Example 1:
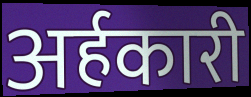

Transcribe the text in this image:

अर्हकारी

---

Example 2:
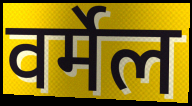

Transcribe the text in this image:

वर्मेल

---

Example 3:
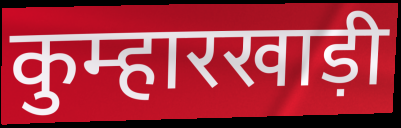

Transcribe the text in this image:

कुम्हारखाड़ी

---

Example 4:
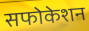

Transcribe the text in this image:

सफोकेशन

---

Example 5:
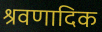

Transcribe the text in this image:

श्रवणादिक